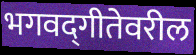
भगवद्‌गीतेवरील